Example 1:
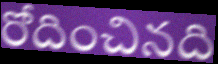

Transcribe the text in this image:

రోదించినది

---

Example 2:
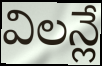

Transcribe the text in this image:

విలన్లే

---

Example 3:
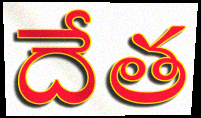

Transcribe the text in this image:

దేత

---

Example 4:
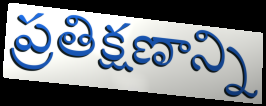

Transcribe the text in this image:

ప్రతిక్షణాన్ని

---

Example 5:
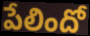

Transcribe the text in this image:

పేలిందో